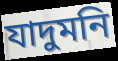
যাদুমনি